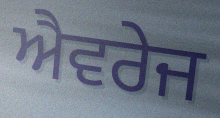
ਐਵਰੇਜ